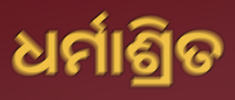
ଧର୍ମାଶ୍ରିତ